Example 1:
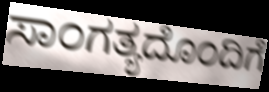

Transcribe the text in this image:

ಸಾಂಗತ್ಯದೊಂದಿಗೆ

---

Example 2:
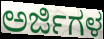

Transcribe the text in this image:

ಅರ್ಜಿಗಳ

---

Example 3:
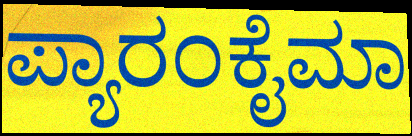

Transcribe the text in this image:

ಪ್ಯಾರಂಕೈಮಾ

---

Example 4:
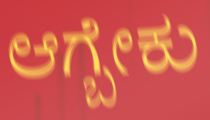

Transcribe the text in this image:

ಆಗ್ಬೇಕು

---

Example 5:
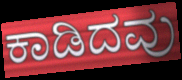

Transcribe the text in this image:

ಕಾಡಿದವು